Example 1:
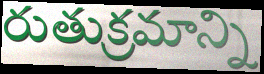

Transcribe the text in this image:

రుతుక్రమాన్ని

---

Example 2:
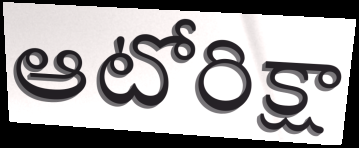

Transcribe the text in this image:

ఆటోరిక్షా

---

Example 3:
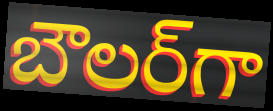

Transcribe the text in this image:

బౌలర్‌గా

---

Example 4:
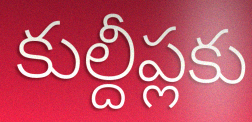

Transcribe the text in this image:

కుల్దీప్లకు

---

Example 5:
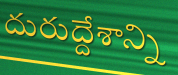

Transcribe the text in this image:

దురుద్దేశాన్ని